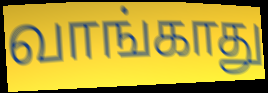
வாங்காது